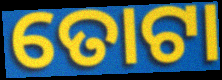
ତୋଟା